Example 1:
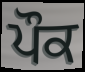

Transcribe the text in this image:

ਪੌਕ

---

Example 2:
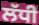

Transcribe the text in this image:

ਲੱਧੀ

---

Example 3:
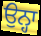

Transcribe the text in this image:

ਉਨ੍ਹਾ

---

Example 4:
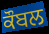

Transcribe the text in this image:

ਕੌਬਲ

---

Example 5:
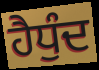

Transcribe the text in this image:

ਹੈਧੁੰਦ